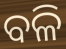
ବଳି